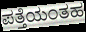
ಪತ್ತೆಯಂತಹ